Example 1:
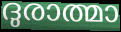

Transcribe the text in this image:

ദുരാത്മാ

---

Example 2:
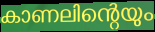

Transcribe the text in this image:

കാണലിന്റെയും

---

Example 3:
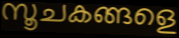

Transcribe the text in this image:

സൂചകങ്ങളെ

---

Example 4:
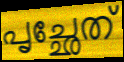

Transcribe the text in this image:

പൃച്ഛേത്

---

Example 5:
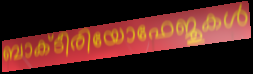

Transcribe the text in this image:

ബാക്ടീരിയോഫേജുകൾ